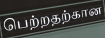
பெற்றதற்கான